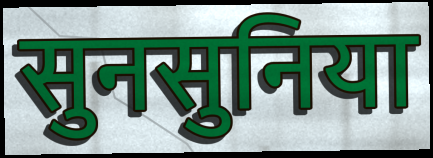
सुनसुनिया